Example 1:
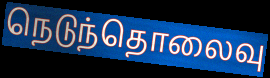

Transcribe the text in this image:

நெடுந்தொலைவு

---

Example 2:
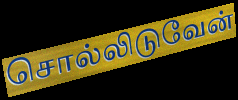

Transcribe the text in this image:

சொல்லிடுவேன்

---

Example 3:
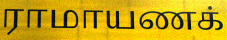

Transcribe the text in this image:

ராமாயணக்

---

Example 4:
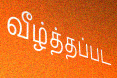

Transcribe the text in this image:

வீழ்த்தப்பட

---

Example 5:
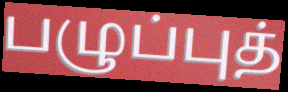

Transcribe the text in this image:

பழுப்புத்